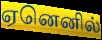
ஏனெனில்